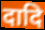
दादि